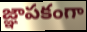
జ్ఞాపకంగా